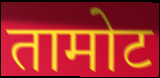
तामोट